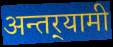
अन्तर्यामी